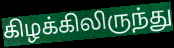
கிழக்கிலிருந்து